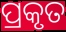
ପ୍ରକୃତ